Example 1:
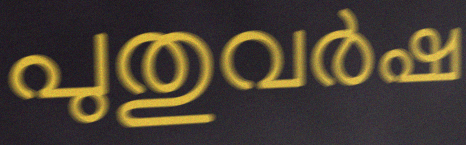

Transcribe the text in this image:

പുതുവർഷ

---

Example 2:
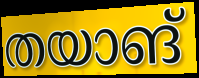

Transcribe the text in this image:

തയാങ്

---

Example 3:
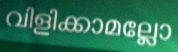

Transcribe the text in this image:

വിളിക്കാമല്ലോ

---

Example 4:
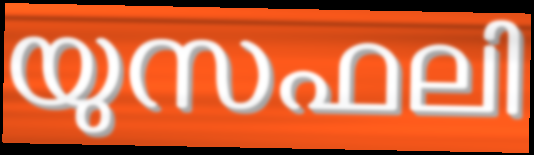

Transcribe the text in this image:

യുസഫലി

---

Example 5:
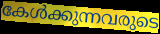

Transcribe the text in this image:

കേൾക്കുന്നവരുടെ